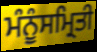
ਮੰਨੂੰਸਮ੍ਰਿਤੀ